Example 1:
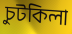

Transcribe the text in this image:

চুটকিলা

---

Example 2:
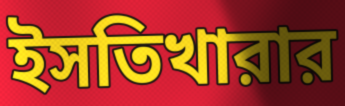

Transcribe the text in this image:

ইসতিখারার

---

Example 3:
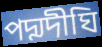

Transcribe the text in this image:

পদ্মদীঘি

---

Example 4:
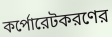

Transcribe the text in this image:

কর্পোরেটকরণের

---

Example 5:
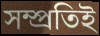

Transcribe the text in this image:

সম্প্রতিই